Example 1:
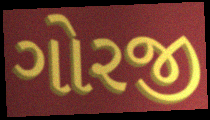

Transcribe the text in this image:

ગોરજી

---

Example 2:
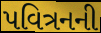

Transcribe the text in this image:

પવિત્રનની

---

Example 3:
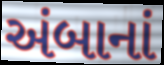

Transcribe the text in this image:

અંબાનાં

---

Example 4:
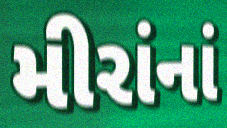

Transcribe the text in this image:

મીરાંનાં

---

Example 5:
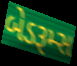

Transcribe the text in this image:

બેડરૂમ્સ